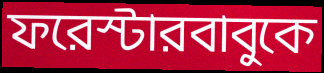
ফরেস্টারবাবুকে